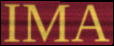
IMA